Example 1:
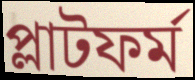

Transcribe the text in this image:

প্লাটফর্ম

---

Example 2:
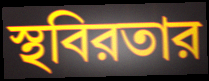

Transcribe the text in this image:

স্থবিরতার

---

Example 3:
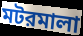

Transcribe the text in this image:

মটরমালা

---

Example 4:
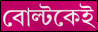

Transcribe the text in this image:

বোল্টকেই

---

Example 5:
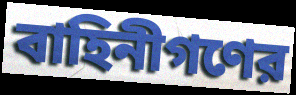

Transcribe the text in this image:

বাহিনীগণের